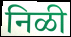
निळी